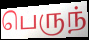
பெருந்